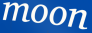
moon